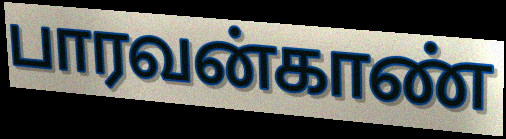
பாரவன்காண்